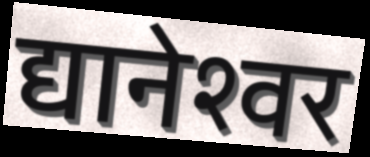
द्यानेश्वर